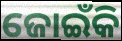
ଜୋଇଁକି